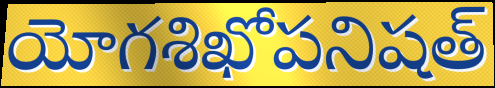
యోగశిఖోపనిషత్